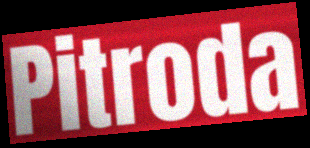
Pitroda